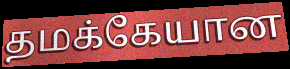
தமக்கேயான